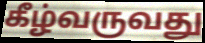
கீழ்வருவது